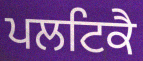
ਪਲਟਿਕੈ